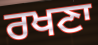
ਰਖਣਾ